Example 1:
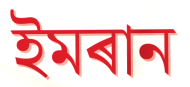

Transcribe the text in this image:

ইমৰান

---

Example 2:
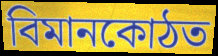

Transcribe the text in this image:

বিমানকোঠত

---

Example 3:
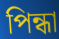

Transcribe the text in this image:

পিন্ধা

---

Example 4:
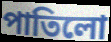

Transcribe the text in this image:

পাতিলো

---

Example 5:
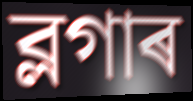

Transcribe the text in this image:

ব্লগাৰ